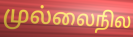
முல்லைநில